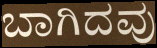
ಬಾಗಿದವು